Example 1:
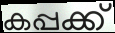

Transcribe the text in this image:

കപ്പക്ക്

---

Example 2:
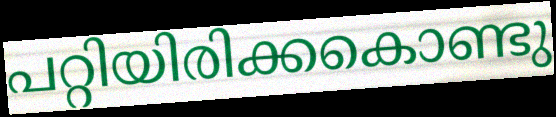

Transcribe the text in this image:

പറ്റിയിരിക്കകൊണ്ടു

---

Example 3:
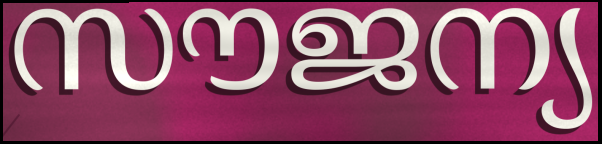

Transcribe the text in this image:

സൗജന്യ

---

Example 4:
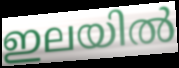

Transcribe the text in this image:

ഇലയിൽ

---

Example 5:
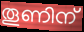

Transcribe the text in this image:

തൂണിന്